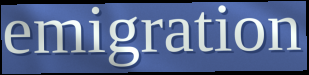
emigration